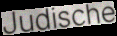
Judische